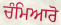
ਚੰਮਿਆਰੋ